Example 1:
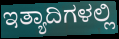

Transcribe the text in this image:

ಇತ್ಯಾದಿಗಳಲ್ಲಿ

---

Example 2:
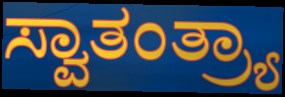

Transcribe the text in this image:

ಸ್ವಾತಂತ್ರ್ಯಾ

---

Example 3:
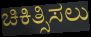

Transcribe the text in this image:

ಚಿಕಿತ್ಸಿಸಲು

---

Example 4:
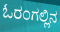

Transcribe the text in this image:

ಓರಂಗಲ್ಲಿನ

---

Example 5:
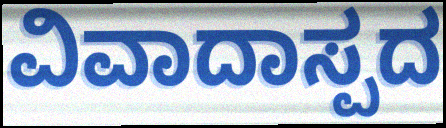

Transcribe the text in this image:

ವಿವಾದಾಸ್ಪದ